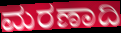
ಮರಣಾದಿ